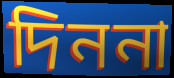
দিননা